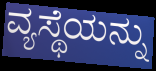
ವ್ಯಸ್ಥೆಯನ್ನು